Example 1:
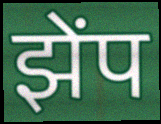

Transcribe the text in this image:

झेंप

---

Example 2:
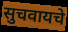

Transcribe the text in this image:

सुचवायचे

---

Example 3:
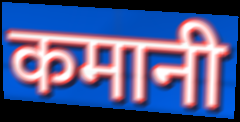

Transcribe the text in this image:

कमानी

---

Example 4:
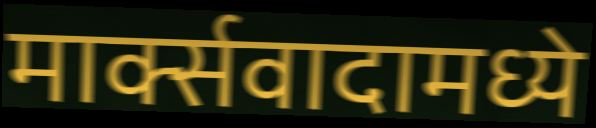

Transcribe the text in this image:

मार्क्सवादामध्ये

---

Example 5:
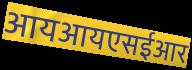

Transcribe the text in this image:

आयआयएसईआर